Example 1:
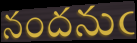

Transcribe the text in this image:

నందనుఁ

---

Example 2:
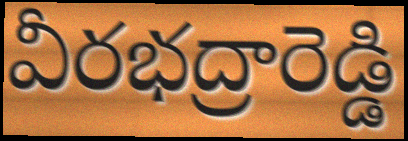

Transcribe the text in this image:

వీరభద్రారెడ్డి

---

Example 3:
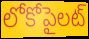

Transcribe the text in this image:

లోకోపైలట్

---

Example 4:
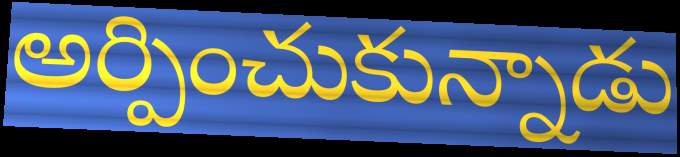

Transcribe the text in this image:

అర్పించుకున్నాడు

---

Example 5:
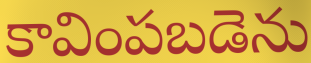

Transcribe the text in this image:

కావింపబడెను